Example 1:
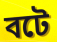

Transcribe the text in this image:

বটে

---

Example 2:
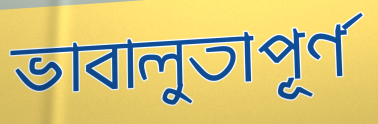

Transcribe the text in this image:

ভাবালুতাপূর্ণ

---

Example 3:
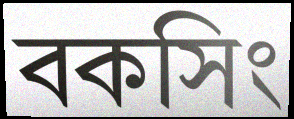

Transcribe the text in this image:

বকসিং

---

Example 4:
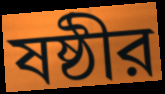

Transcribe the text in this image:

ষষ্ঠীর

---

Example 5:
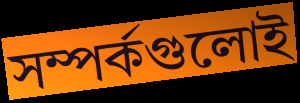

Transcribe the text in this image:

সম্পর্কগুলোই